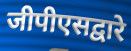
जीपीएसद्वारे